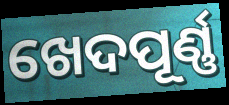
ଖେଦପୂର୍ଣ୍ଣ